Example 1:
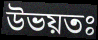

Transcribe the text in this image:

উভয়তঃ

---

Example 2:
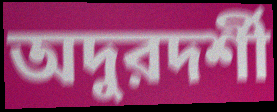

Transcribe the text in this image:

অদুরদর্শী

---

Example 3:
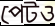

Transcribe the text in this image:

পেটও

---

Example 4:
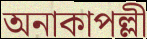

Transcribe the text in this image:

অনাকাপল্লী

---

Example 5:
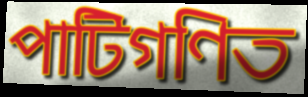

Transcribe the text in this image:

পাটিগণিত